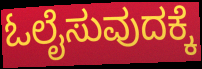
ಓಲೈಸುವುದಕ್ಕೆ